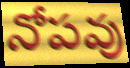
నోపవు